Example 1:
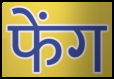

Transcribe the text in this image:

फेंग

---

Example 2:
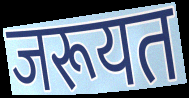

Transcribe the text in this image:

जरूयत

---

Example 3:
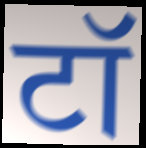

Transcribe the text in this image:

टॉ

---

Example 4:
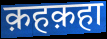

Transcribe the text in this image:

क़हक़हा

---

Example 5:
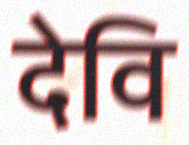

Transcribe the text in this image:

देवि